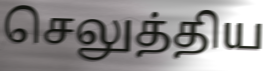
செலுத்திய